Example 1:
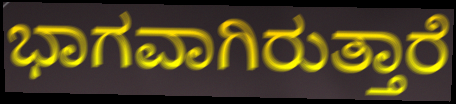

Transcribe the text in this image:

ಭಾಗವಾಗಿರುತ್ತಾರೆ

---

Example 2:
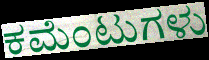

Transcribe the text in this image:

ಕಮೆಂಟುಗಳು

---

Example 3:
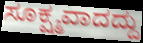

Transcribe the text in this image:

ಸೂಕ್ಷ್ಮವಾದದ್ದು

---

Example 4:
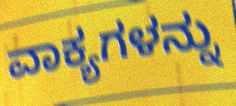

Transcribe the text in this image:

ವಾಕ್ಯಗಳನ್ನು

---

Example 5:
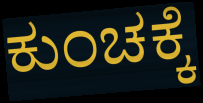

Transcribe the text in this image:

ಕುಂಚಕ್ಕೆ